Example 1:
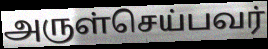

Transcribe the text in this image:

அருள்செய்பவர்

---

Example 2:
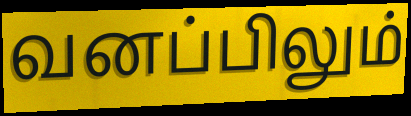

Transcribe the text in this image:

வனப்பிலும்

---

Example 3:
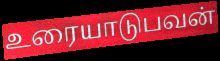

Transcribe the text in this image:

உரையாடுபவன்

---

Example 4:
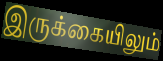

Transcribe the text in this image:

இருக்கையிலும்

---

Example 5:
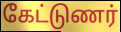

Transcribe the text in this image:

கேட்டுணர்